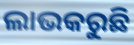
ଲାଭକରୁଛି